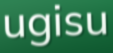
ugisu